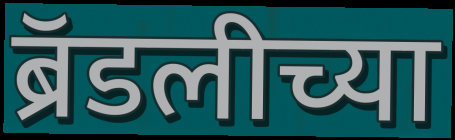
ब्रॅडलीच्या